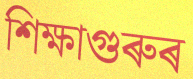
শিক্ষাগুৰুৰ